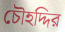
চৌহদ্দির